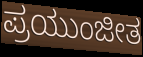
ಪ್ರಯುಂಜೀತ